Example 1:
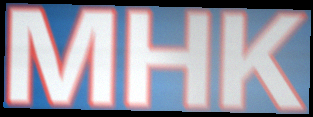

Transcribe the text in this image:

MHK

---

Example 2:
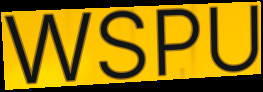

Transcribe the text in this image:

WSPU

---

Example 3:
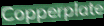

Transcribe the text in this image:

Copperplate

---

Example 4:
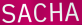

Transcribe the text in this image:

SACHA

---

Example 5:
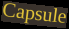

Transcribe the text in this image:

Capsule